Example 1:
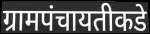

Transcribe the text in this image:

ग्रामपंचायतीकडे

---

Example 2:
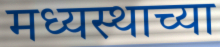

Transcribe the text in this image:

मध्यस्थाच्या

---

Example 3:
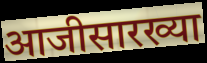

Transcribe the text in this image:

आजीसारख्या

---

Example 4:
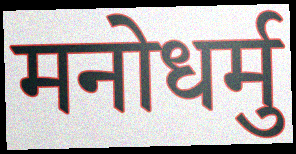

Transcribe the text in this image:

मनोधर्मु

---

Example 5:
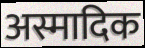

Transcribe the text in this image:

अस्मादिक